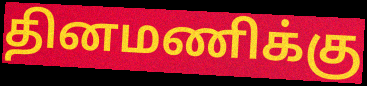
தினமணிக்கு